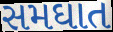
સમઘાત